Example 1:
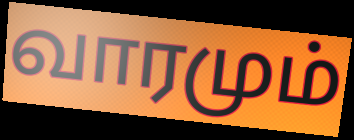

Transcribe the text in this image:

வாரமும்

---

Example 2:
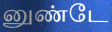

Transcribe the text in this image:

னுண்டே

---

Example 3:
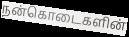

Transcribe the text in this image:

நன்கொடைகளின்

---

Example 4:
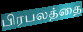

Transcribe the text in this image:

பிரபலத்தை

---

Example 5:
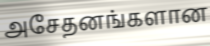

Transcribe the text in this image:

அசேதனங்களான